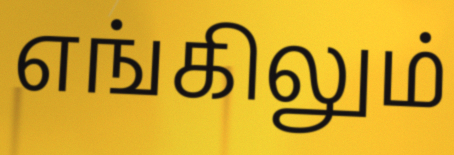
எங்கிலும்